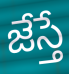
జేస్తే